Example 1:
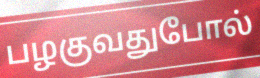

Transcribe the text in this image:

பழகுவதுபோல்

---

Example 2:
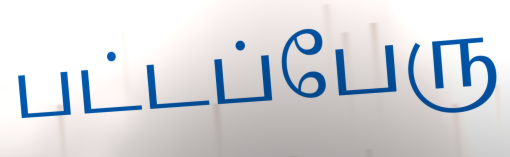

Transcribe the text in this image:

பட்டப்பேரு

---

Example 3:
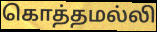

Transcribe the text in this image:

கொத்தமல்லி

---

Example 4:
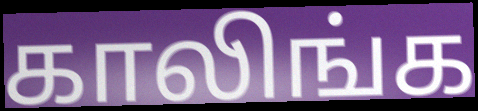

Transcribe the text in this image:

காலிங்க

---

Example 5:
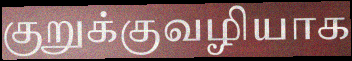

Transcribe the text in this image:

குறுக்குவழியாக